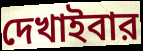
দেখাইবার